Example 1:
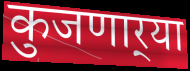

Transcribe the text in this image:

कुजणार्या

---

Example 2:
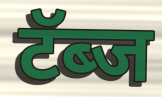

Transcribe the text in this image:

टॅब्ज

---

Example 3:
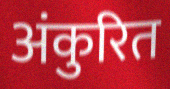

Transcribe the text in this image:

अंकुरित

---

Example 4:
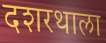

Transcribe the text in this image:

दशरथाला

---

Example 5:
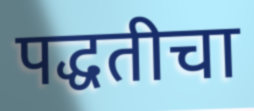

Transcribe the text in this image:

पद्धतीचा